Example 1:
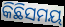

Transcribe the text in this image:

କିଛିସମୟ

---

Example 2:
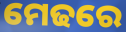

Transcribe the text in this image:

ମେଢରେ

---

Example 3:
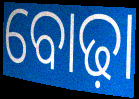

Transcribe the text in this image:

ବୋଢ଼ା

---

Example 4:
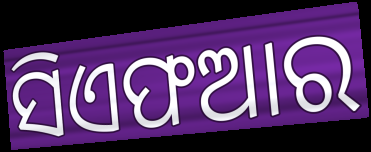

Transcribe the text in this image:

ସିଏଫଆର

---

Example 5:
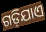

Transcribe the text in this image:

ଗଡ଼ିଯାଏ